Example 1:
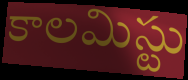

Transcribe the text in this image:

కాలమిస్టు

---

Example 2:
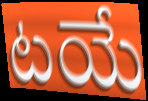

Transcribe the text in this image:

టయే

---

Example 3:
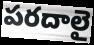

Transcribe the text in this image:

పరదాలై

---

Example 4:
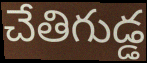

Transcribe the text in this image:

చేతిగుడ్డ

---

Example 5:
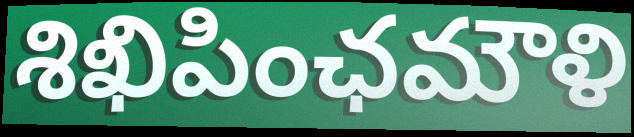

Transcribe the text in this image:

శిఖిపింఛమౌళి